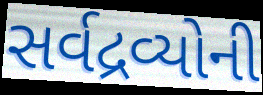
સર્વદ્રવ્યોની